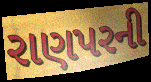
રાણપરની